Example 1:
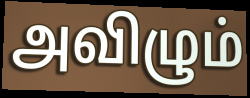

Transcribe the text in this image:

அவிழும்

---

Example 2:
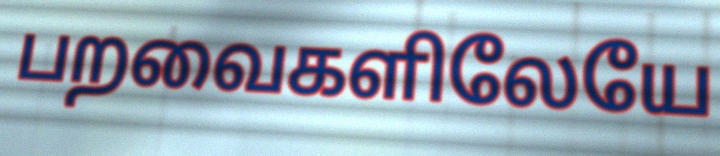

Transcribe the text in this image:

பறவைகளிலேயே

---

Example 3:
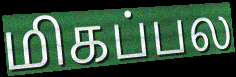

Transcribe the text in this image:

மிகப்பல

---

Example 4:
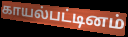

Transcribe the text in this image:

காயல்பட்டினம்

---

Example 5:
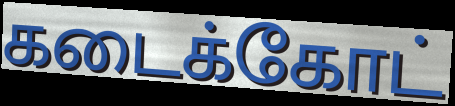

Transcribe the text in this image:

கடைக்கோட்